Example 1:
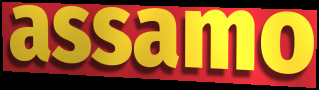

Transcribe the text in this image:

assamo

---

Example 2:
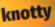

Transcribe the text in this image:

knotty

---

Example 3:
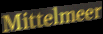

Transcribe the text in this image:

Mittelmeer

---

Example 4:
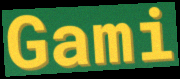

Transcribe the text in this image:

Gami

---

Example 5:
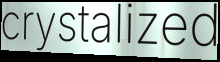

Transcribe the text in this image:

crystalized